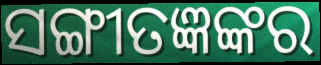
ସଙ୍ଗୀତଜ୍ଞଙ୍କର